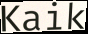
Kaik